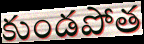
కుండపోత